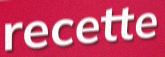
recette